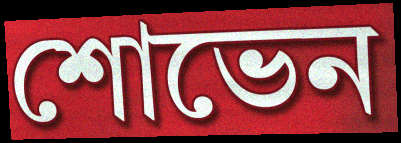
শোভেন